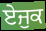
ਏਜੁਕ